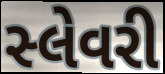
સ્લેવરી